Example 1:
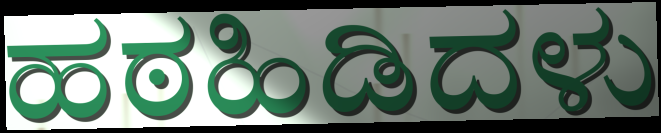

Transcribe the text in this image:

ಹಠಹಿಡಿದಳು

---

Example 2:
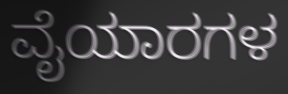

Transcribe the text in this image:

ವೈಯಾರಗಳ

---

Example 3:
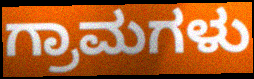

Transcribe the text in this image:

ಗ್ರಾಮಗಳು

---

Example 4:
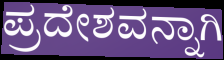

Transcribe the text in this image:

ಪ್ರದೇಶವನ್ನಾಗಿ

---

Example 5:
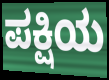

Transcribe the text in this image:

ಪಕ್ಷಿಯ